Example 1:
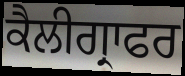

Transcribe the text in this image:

ਕੈਲੀਗ੍ਰਾਫਰ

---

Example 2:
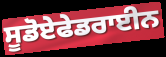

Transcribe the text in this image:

ਸੂਡੋਏਫੇਡਰਾਈਨ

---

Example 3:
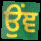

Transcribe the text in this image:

ਉਂਞ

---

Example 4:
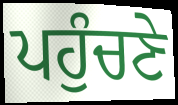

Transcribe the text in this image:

ਪਹੁੰਚਣੇ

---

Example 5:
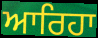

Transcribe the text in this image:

ਆਰਿਹਾ